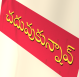
చదువుకున్నావ్